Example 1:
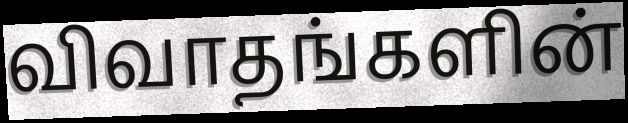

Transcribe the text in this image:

விவாதங்களின்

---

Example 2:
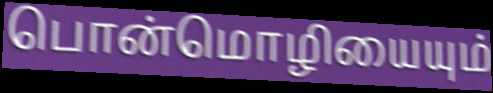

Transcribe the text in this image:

பொன்மொழியையும்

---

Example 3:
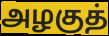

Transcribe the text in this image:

அழகுத்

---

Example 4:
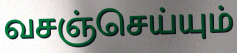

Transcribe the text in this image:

வசஞ்செய்யும்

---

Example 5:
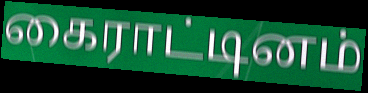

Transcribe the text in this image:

கைராட்டினம்